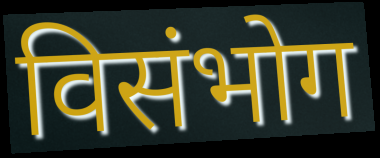
विसंभोग